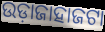
ଉଡ଼ାଜାହାଜଟା